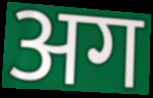
अग